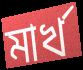
মার্খ